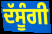
ਦੱਸੂੰਗੀ